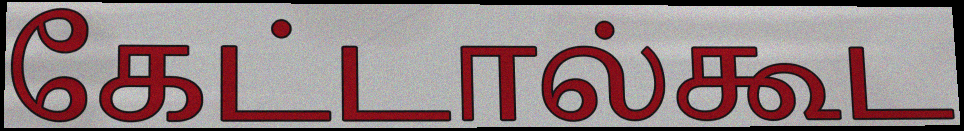
கேட்டால்கூட